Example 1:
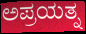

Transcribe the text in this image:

ಅಪ್ರಯತ್ನ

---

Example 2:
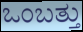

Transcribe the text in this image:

ಒಂಬತ್ತು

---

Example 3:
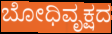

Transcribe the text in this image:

ಬೋಧಿವೃಕ್ಷದ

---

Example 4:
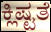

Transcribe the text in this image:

ಕ್ಲಿಷ್ಟತೆ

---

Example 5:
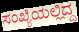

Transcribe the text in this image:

ಸಂಖ್ಯೆಯಲ್ಲಿದ್ದ